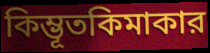
কিম্ভূতকিমাকার